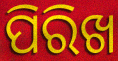
ପିରିଖ